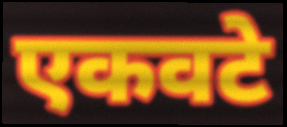
एकवटे